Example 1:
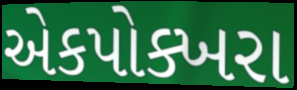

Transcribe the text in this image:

એકપોક્ખરા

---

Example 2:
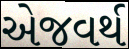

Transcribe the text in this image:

એજવર્થ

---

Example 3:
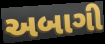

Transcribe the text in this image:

અબાગી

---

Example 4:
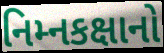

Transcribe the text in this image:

નિમ્નકક્ષાનો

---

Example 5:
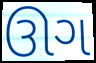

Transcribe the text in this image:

ઊગ